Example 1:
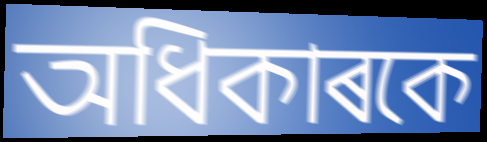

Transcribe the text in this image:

অধিকাৰকে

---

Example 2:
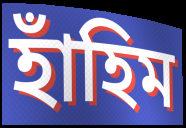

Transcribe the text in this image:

হাঁহিম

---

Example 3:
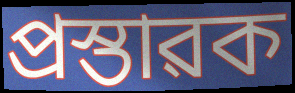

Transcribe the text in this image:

প্ৰস্তাৱক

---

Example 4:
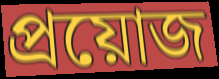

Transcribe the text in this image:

প্ৰয়োজ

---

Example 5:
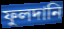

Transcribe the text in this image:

ফুলদানি